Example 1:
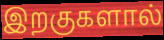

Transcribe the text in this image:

இறகுகளால்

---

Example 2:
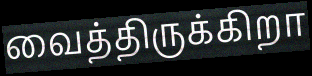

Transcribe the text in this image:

வைத்திருக்கிறா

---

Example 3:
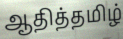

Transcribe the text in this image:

ஆதித்தமிழ்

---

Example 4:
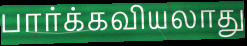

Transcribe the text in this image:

பார்க்கவியலாது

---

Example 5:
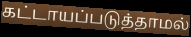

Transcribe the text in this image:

கட்டாயப்படுத்தாமல்